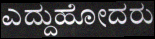
ಎದ್ದುಹೋದರು